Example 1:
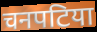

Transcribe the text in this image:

चनपटिया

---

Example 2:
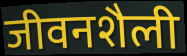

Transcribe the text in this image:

जीवनशैली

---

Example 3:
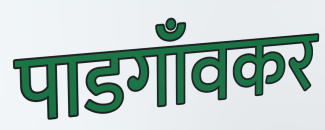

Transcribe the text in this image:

पाडगाँवकर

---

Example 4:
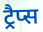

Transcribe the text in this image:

ट्रैप्स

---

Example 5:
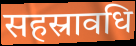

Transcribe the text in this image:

सहस्रावधि